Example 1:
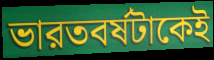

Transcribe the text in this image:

ভারতবর্ষটাকেই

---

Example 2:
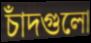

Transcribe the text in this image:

চাঁদগুলো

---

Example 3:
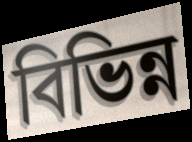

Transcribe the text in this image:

বিভিন্ন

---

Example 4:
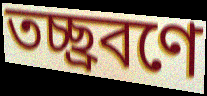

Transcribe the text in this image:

তচ্ছ্রবণে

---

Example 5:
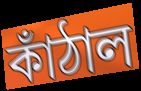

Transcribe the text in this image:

কাঁঠাল